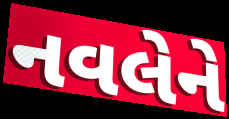
નવલેને